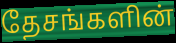
தேசங்களின்